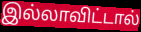
இல்லாவிட்டால்